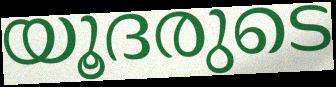
യൂദരുടെ